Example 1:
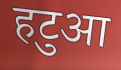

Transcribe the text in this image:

हटुआ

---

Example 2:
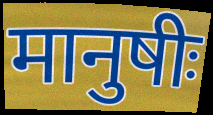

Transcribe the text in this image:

मानुषीः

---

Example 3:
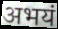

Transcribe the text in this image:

अभयं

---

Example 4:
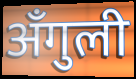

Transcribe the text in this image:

अँगुली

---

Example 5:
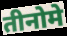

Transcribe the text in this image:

तीनोमे